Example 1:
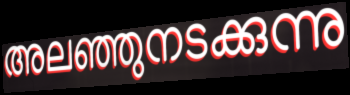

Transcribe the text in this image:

അലഞ്ഞുനടക്കുന്നു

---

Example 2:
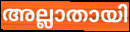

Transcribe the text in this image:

അല്ലാതായി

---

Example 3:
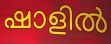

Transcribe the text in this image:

ഷാളിൽ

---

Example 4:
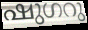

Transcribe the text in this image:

ഷുഗറു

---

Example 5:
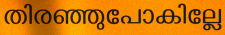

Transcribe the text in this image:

തിരഞ്ഞുപോകില്ലേ